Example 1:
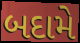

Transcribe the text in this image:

બદામે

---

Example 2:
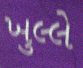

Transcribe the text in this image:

ખુલ્લે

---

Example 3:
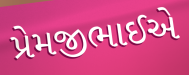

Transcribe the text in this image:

પ્રેમજીભાઈએ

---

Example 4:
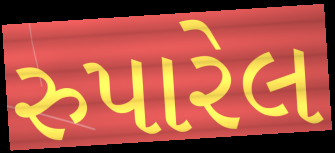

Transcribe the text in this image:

રુપારેલ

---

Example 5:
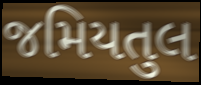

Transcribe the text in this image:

જમિયતુલ